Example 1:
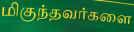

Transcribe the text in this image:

மிகுந்தவர்களை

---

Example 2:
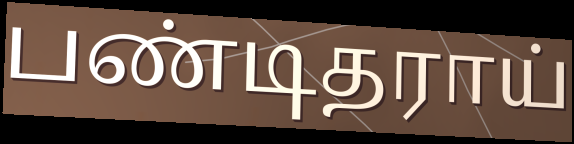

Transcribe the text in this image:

பண்டிதராய்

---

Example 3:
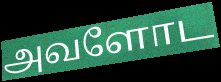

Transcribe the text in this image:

அவளோட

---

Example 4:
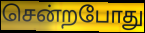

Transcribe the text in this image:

சென்றபோது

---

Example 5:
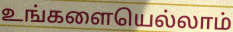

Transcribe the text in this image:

உங்களையெல்லாம்